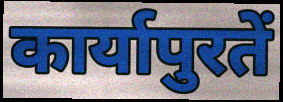
कार्यापुरतें